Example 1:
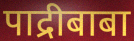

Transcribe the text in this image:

पाद्रीबाबा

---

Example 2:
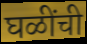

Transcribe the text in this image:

घळींची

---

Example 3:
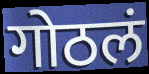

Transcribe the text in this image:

गोठलं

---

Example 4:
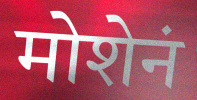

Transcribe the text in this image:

मोशेनं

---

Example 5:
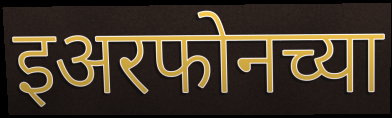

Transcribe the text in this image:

इअरफोनच्या